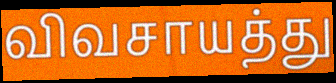
விவசாயத்து